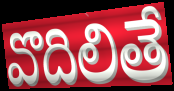
వొదిలితే